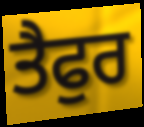
ਤੈਫੁਰ